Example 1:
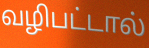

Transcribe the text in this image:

வழிபட்டால்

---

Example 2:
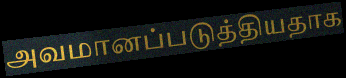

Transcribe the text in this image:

அவமானப்படுத்தியதாக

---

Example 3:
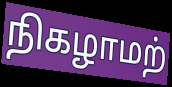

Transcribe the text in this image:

நிகழாமற்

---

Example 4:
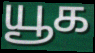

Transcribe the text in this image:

யூக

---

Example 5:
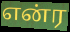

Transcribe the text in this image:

என்ர